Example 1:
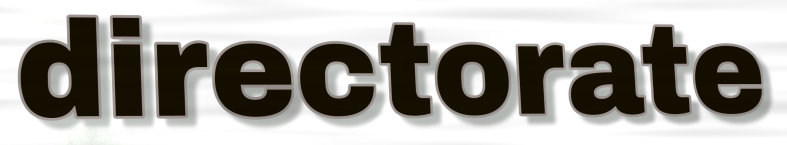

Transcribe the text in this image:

directorate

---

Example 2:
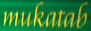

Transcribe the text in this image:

mukatab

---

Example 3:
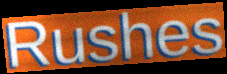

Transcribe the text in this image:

Rushes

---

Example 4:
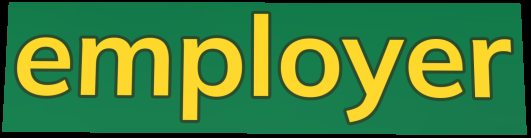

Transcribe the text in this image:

employer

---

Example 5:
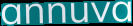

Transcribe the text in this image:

annuva